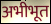
अभीभूत